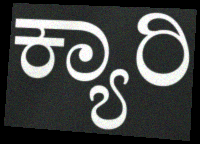
ಕ್ಯಾರಿ